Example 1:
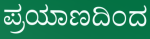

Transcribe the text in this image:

ಪ್ರಯಾಣದಿಂದ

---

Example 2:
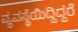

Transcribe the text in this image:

ವ್ಯವಸ್ಥೆಯಿದ್ದಿದ್ದರೆ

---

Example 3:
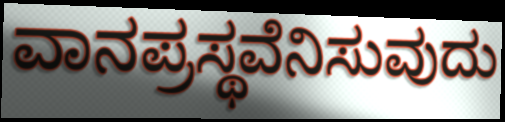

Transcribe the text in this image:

ವಾನಪ್ರಸ್ಥವೆನಿಸುವುದು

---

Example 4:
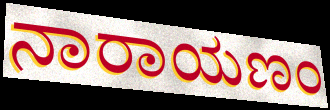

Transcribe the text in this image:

ನಾರಾಯಣಂ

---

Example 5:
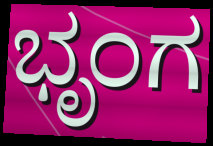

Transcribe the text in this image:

ಭೃಂಗ